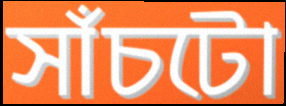
সাঁচটো